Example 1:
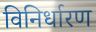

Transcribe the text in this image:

विनिर्धारण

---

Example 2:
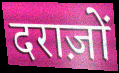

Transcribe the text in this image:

दराज़ों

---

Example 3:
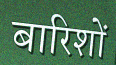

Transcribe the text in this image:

बारिशों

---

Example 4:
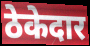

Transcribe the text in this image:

ठेकेदार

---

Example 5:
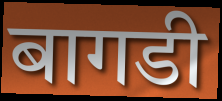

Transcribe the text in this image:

बागडी